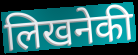
लिखनेकी